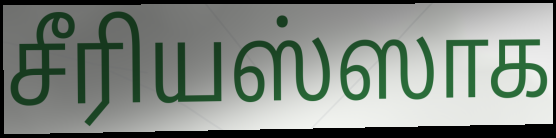
சீரியஸ்ஸாக